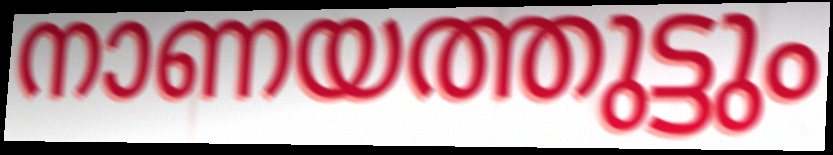
നാണയത്തുട്ടും